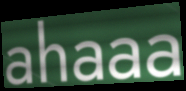
ahaaa